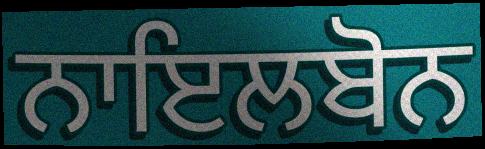
ਨਾਇਲਬੋਨ